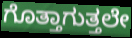
ಗೊತ್ತಾಗುತ್ತಲೇ